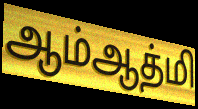
ஆம்ஆத்மி